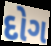
દોગ